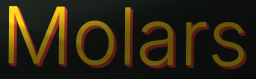
Molars